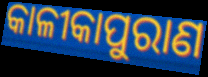
କାଳୀକାପୁରାଣ